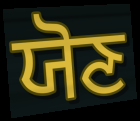
ਯੋਣ